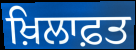
ਖ਼ਿਲਾਫ਼ਤ